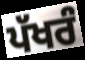
ਪੱਖਰੰ